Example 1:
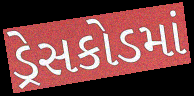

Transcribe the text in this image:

ડ્રેસકોડમાં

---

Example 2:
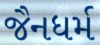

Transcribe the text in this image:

જૈનધર્મ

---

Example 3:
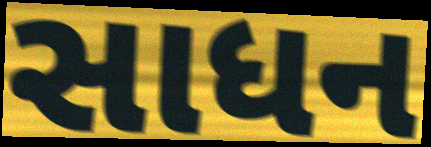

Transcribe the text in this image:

સાધન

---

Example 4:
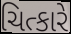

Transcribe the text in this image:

ચિત્કારે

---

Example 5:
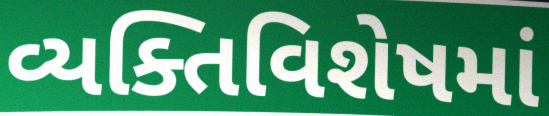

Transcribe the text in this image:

વ્યક્તિવિશેષમાં